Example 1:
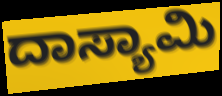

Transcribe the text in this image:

ದಾಸ್ಯಾಮಿ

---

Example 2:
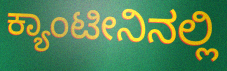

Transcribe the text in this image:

ಕ್ಯಾಂಟೀನಿನಲ್ಲಿ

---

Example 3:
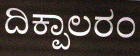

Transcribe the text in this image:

ದಿಕ್ಪಾಲರಂ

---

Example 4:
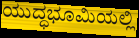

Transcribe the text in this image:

ಯುದ್ಧಭೂಮಿಯಲ್ಲಿ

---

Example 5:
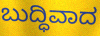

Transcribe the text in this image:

ಬುದ್ಧಿವಾದ